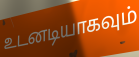
உடனடியாகவும்